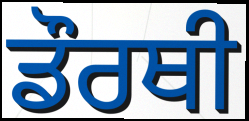
ਡੌਰਥੀ